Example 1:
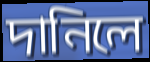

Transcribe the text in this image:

দানিলে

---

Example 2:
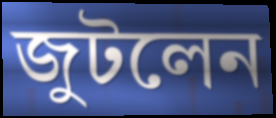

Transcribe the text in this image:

জুটলেন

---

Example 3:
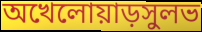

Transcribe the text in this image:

অখেলোয়াড়সুলভ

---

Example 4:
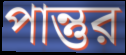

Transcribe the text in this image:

পান্তুর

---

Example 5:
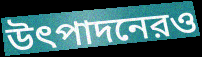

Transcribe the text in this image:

উৎপাদনেরও